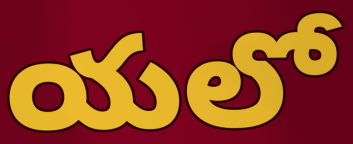
యలో